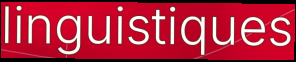
linguistiques